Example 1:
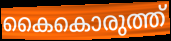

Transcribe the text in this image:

കൈകൊരുത്ത്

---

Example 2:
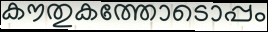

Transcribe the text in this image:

കൗതുകത്തോടൊപ്പം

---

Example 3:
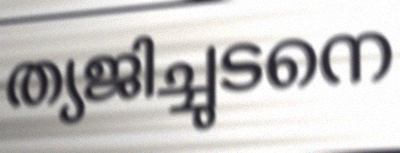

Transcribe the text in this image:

ത്യജിച്ചുടനെ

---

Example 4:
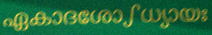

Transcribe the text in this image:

ഏകാദശോഽധ്യായഃ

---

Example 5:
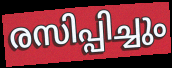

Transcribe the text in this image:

രസിപ്പിച്ചും